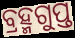
ବ୍ରହ୍ମଗୁପ୍ତ